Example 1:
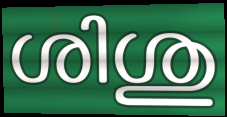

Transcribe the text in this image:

ശിശു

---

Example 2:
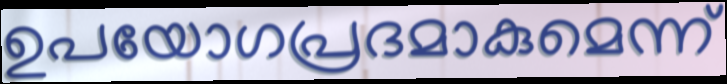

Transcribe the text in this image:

ഉപയോഗപ്രദമാകുമെന്ന്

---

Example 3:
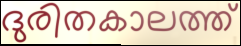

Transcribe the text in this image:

ദുരിതകാലത്ത്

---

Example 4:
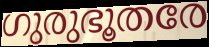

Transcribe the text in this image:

ഗുരുഭൂതരേ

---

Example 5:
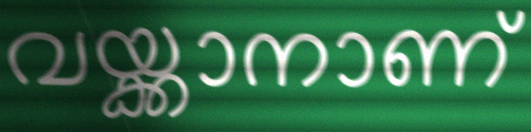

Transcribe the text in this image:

വയ്ക്കാനാണ്